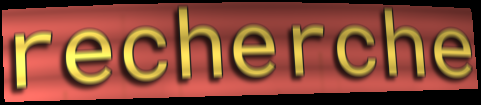
recherche